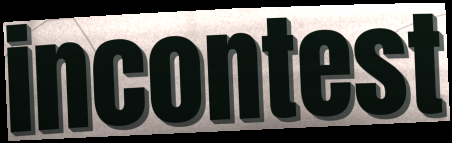
incontest